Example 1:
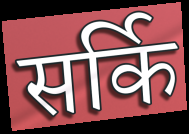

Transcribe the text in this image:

सर्कि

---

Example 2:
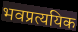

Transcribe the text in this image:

भवप्रत्ययिक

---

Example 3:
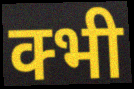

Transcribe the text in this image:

क्भी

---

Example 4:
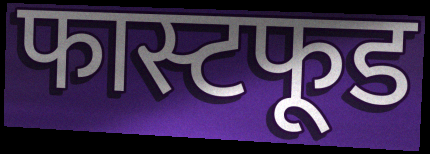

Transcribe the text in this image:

फास्‍टफूड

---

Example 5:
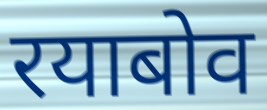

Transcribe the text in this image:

रयाबोव